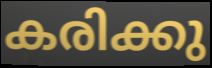
കരിക്കു